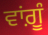
ਵਾਂਗ਼ੂੰ